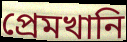
প্রেমখানি